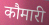
कौमारी